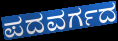
ಪದವರ್ಗದ